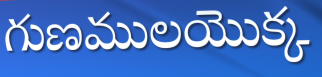
గుణములయొక్క